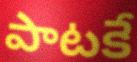
పాటకే